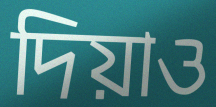
দিয়াও